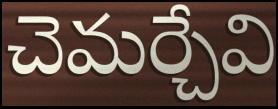
చెమర్చేవి